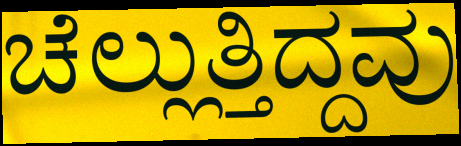
ಚೆಲ್ಲುತ್ತಿದ್ದವು